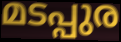
മടപ്പുര